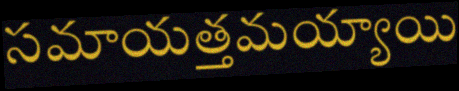
సమాయత్తమయ్యాయి